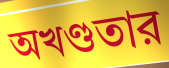
অখণ্ডতার